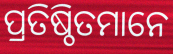
ପ୍ରତିଷ୍ଠିତମାନେ